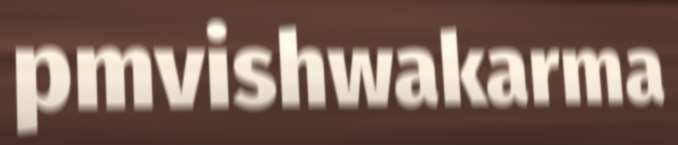
pmvishwakarma